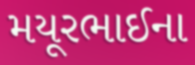
મયૂરભાઈના